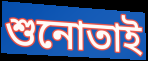
শুনোতাই